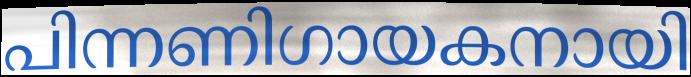
പിന്നണിഗായകനായി